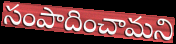
సంపాదించామని